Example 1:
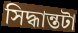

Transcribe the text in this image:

সিদ্ধান্তটা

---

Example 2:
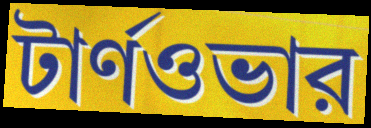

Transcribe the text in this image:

টার্ণওভার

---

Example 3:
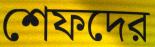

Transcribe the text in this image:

শেফদের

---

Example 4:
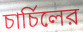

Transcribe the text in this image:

চার্চিলের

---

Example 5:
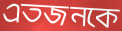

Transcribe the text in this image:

এতজনকে